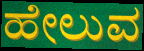
ಹೇಲುವ